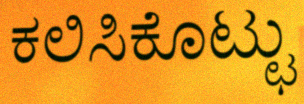
ಕಲಿಸಿಕೊಟ್ಟು